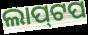
ଲାପ୍‌ଟପ